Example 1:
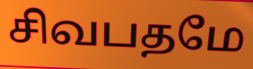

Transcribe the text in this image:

சிவபதமே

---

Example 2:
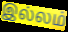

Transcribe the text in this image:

இல்லம்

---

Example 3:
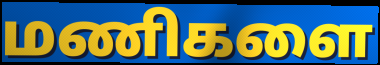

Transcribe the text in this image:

மணிகளை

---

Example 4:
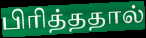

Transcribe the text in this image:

பிரித்ததால்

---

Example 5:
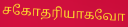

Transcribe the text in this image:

சகோதரியாகவோ